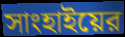
সাংহাইয়ের